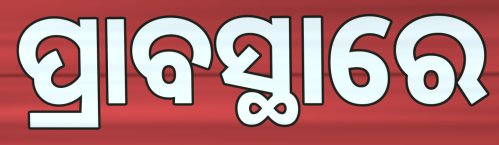
ପ୍ରାବସ୍ଥାରେ